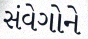
સંવેગોને